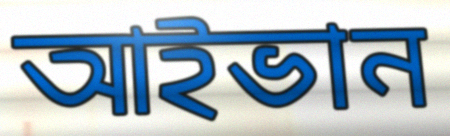
আইভান